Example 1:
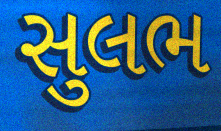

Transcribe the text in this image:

સુલભ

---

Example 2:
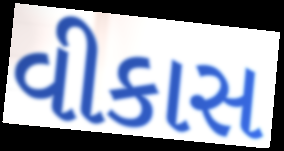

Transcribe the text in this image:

વીકાસ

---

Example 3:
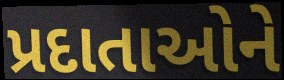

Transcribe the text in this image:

પ્રદાતાઓને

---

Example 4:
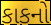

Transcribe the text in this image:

કાકનો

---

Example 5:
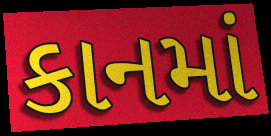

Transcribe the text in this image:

કાનમાં